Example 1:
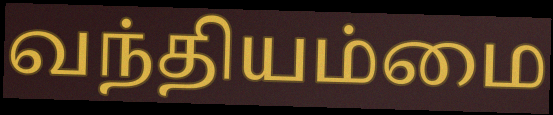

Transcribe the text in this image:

வந்தியம்மை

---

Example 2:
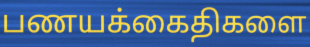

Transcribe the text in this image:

பணயக்கைதிகளை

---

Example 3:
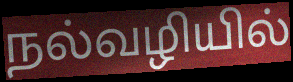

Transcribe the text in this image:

நல்வழியில்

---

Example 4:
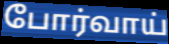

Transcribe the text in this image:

போர்வாய்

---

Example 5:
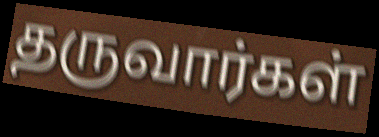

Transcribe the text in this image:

தருவார்கள்